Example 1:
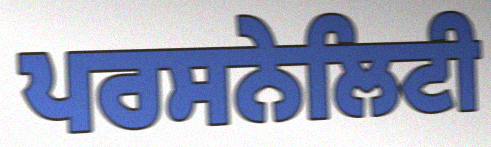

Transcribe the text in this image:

ਪਰਸਨੇਲਿਟੀ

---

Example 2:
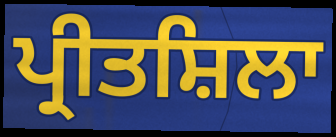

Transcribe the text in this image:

ਪ੍ਰੀਤਸ਼ਿਲਾ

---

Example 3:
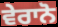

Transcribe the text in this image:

ਵੇਰਾਨੋ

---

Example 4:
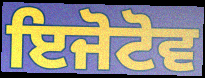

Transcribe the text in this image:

ਇਜੋਟੋਵ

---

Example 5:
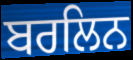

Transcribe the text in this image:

ਬਰਲਿਨ